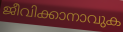
ജീവിക്കാനാവുക